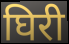
घिरी